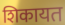
शिकायत